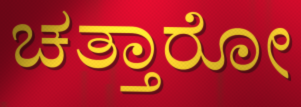
ಚತ್ತಾರೋ